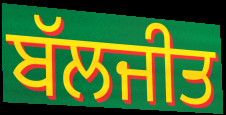
ਬੱਲਜੀਤ